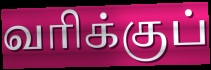
வரிக்குப்